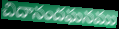
చిదానందఘనము